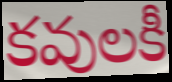
కవులకీ